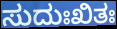
ಸುದುಃಖಿತಃ